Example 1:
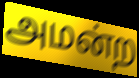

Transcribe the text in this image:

அமன்ற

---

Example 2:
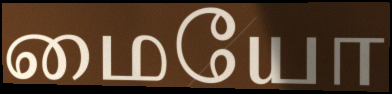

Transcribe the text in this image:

மையோ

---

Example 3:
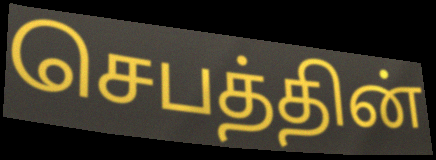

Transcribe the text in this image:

செபத்தின்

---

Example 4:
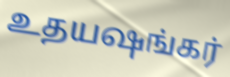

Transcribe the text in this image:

உதயஷங்கர்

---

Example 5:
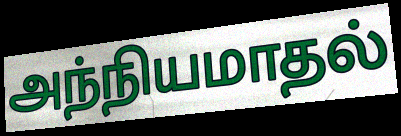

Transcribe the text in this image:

அந்நியமாதல்